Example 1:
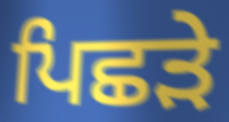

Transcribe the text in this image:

ਪਿਛੜੇ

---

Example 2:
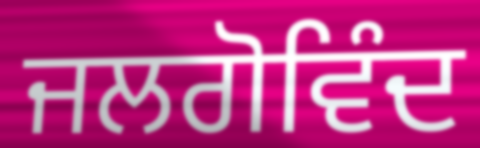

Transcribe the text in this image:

ਜਲਗੋਵਿੰਦ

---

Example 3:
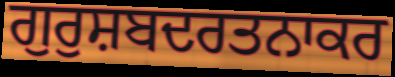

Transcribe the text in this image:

ਗੁਰੁਸ਼ਬਦਰਤਨਾਕਰ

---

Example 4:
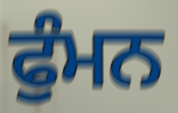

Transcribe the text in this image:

ਫੁੰਮਨ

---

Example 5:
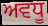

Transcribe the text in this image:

ਅਵਧੂ